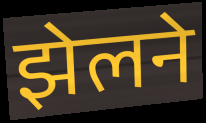
झेलने